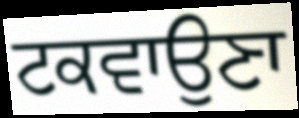
ਟਕਵਾਉਣਾ